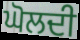
ਘੋਲਦੀ